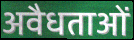
अवैधताओं